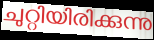
ചുറ്റിയിരിക്കുന്നു